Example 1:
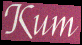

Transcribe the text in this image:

Kum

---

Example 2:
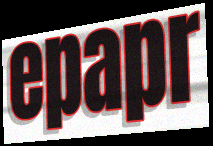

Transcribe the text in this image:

epapr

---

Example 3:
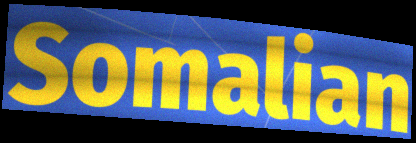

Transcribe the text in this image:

Somalian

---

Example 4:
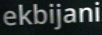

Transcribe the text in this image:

ekbijani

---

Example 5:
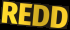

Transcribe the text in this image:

REDD